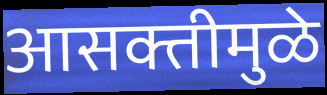
आसक्तीमुळे